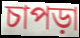
চাপড়া